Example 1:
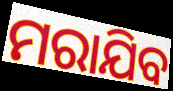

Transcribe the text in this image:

ମରାଯିବ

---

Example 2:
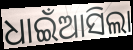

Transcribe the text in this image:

ଧାଇଁଆସିଲା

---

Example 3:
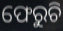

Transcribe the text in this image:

ଫେରୁଚି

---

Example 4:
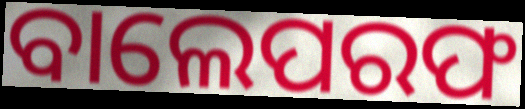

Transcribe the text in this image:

ବାଲେପରଫ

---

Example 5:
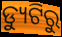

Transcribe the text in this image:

ଡ୍ୟୁଟିରୁ